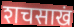
शचसाखं